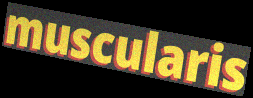
muscularis